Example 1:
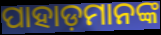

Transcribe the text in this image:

ପାହାଡ଼ମାନଙ୍କ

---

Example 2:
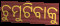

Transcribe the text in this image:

ଚୁମୁଟିବାକୁ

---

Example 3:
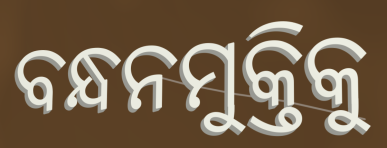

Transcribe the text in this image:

ବନ୍ଧନମୁକ୍ତିକୁ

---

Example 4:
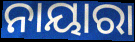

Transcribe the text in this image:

ନାୟାରା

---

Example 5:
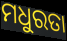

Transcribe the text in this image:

ମଧୁରତା